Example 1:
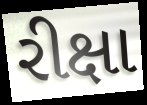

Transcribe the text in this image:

રીક્ષા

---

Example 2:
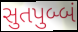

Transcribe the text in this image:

સુતપુબ્બં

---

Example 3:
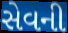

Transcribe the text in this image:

સેવની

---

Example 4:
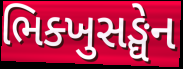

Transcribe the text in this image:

ભિક્ખુસઙ્ઘેન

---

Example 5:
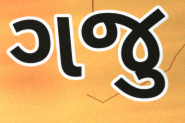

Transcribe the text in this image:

ગજુ